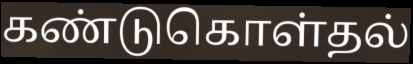
கண்டுகொள்தல்